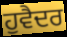
ਹੁਵੈਦਰ